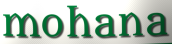
mohana